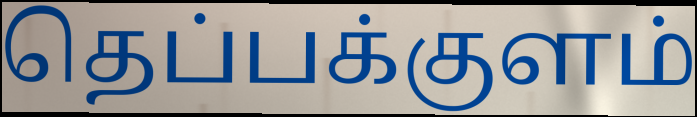
தெப்பக்குளம்